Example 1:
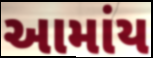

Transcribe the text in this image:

આમાંય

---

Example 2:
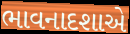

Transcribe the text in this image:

ભાવનાદશાએ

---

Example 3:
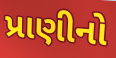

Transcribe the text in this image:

પ્રાણીનો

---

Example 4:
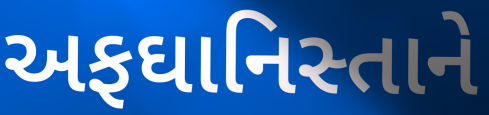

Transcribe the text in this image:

અફઘાનિસ્તાને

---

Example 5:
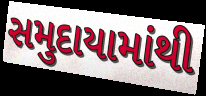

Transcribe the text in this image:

સમુદાયામાંથી